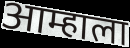
आम्हाला